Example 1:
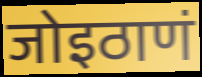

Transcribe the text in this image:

जोइठाणं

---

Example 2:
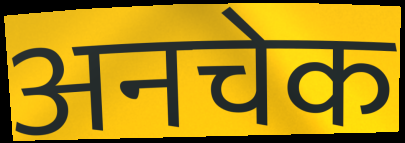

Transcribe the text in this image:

अनचेक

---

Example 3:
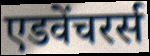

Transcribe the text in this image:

एडवेंचरर्स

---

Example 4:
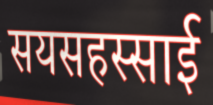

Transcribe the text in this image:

सयसहस्साई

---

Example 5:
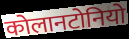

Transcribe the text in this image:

कोलानटोनियो